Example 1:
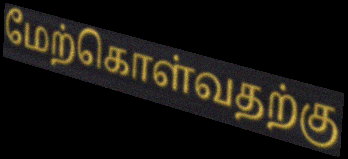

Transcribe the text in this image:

மேற்கொள்வதற்கு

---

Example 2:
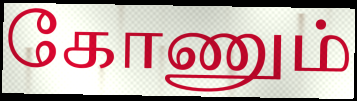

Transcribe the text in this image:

கோணும்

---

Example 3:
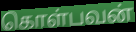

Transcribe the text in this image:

கொள்பவன்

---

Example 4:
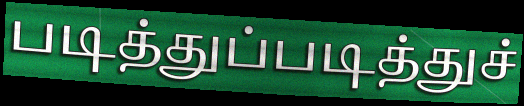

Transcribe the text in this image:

படித்துப்படித்துச்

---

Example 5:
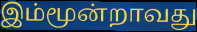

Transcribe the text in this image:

இம்மூன்றாவது